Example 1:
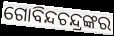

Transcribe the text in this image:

ଗୋବିନ୍ଦଚନ୍ଦ୍ରଙ୍କର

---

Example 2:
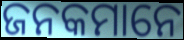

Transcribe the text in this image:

ଜନକମାନେ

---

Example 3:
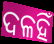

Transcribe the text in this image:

ଦଳହିଁ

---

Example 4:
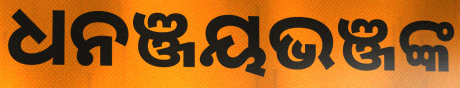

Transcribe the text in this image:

ଧନଞ୍ଜୟଭଞ୍ଜଙ୍କ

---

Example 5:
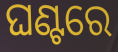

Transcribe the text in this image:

ଘଣ୍ଟରେ